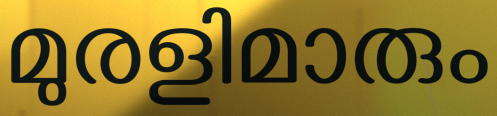
മുരളിമാരും